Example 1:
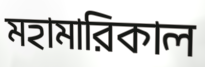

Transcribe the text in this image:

মহামারিকাল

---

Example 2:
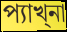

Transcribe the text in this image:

প্যাখ্না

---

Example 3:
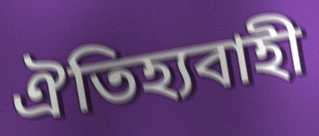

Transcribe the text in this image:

ঐতিহ্যবাহী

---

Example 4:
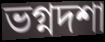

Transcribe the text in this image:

ভগ্নদশা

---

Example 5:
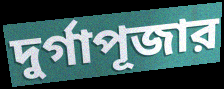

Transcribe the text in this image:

দুর্গাপূজার